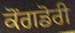
ਕੋਂਗਡੋਰੀ